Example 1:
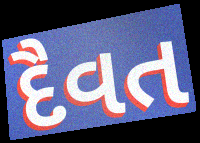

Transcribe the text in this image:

દૈવત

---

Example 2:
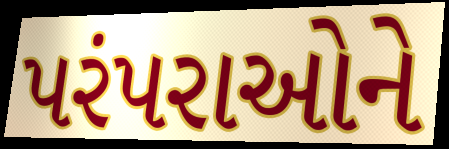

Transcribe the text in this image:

પરંપરાઓને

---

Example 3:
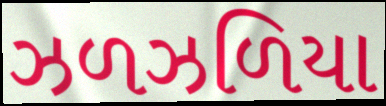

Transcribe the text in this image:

ઝળઝળિયા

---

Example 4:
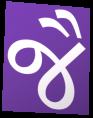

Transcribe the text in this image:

જૈ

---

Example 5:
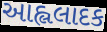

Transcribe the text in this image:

આહ્લલાદક